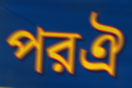
পরঐ